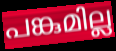
പങ്കുമില്ല